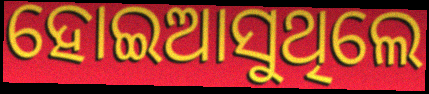
ହୋଇଆସୁଥିଲେ